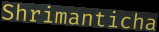
Shrimanticha